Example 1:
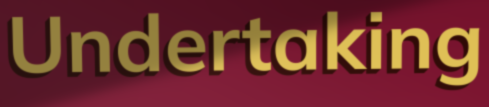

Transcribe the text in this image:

Undertaking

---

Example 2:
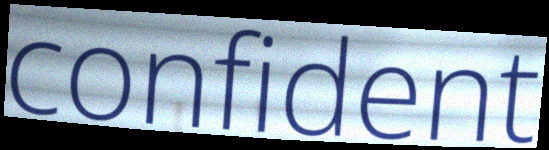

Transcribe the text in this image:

confident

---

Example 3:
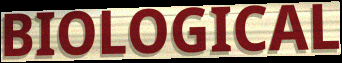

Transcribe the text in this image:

BIOLOGICAL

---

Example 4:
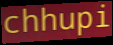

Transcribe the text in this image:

chhupi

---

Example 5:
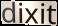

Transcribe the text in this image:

dixit